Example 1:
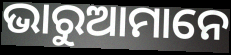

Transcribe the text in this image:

ଭାରୁଆମାନେ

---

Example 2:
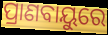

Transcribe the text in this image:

ପ୍ରାଣବାୟୁରେ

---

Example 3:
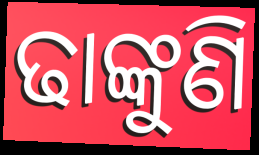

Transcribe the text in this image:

ଢାଙ୍କୁଣି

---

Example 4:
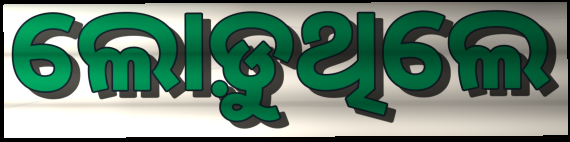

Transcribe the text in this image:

ଲୋଡ଼ୁଥିଲେ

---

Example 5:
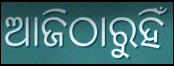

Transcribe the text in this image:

ଆଜିଠାରୁହିଁ